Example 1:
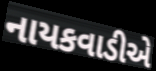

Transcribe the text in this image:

નાયકવાડીએ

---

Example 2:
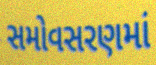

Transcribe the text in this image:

સમોવસરણમાં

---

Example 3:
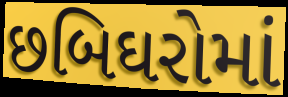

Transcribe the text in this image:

છબિઘરોમાં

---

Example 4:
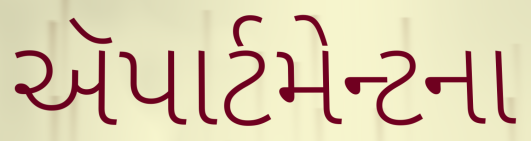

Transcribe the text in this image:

ઍપાર્ટમેન્ટના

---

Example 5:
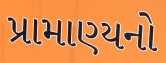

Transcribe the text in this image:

પ્રામાણ્યનો